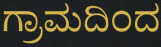
ಗ್ರಾಮದಿಂದ